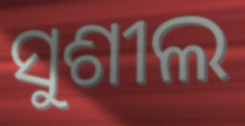
ସୁଶୀଲ